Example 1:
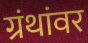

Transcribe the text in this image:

ग्रंथांवर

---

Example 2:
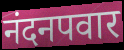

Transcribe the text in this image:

नंदनपवार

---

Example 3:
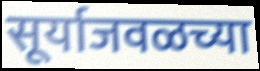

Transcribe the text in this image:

सूर्याजवळच्या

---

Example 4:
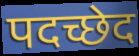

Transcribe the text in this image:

पदच्छेद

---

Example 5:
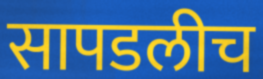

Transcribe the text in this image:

सापडलीच